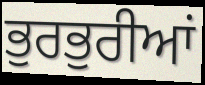
ਭੁਰਭੁਰੀਆਂ